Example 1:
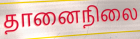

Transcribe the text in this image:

தானைநிலை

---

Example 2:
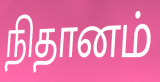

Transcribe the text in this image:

நிதானம்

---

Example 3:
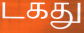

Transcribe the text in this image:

டகது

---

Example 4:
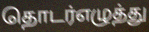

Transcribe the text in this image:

தொடர்எழுத்து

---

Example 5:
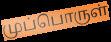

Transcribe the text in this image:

முப்பொருள்